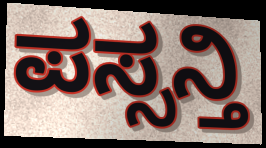
ಪಸ್ಸನ್ತಿ